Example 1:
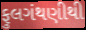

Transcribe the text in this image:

ફુલગંથણીથી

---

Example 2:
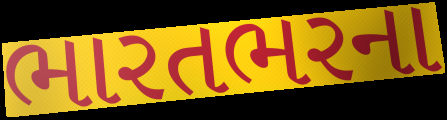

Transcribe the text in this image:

ભારતભરના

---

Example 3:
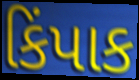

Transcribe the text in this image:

કિંપાક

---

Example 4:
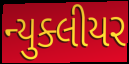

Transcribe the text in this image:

ન્યુક્લીયર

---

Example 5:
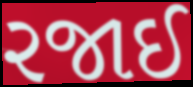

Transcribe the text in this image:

રજાઈ